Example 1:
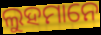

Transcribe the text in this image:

ଲୁହମାନେ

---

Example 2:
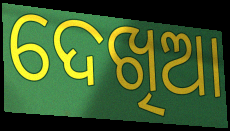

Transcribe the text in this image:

ଦେଖିଆ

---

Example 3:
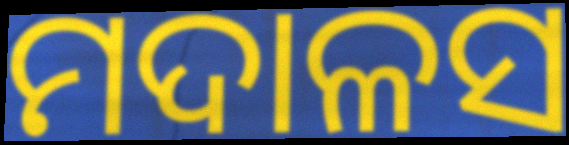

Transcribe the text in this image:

ମଦାଳସ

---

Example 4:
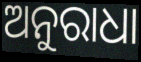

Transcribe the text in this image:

ଅନୁରାଧା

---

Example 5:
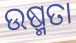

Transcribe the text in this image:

ଉଷ୍ମତା